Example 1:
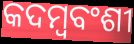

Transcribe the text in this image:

କଦମ୍ବବଂଶୀ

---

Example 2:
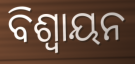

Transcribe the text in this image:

ବିଶ୍ୱାୟନ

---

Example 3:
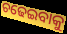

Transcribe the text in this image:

ଚଢେଇବାକୁ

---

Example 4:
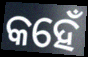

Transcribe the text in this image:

କହେଁ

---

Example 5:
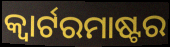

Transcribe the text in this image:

କ୍ୱାର୍ଟରମାଷ୍ଟର